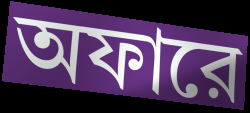
অফারে